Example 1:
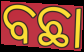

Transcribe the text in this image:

ବଛା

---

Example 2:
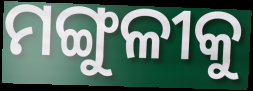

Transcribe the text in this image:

ମଙ୍ଗୁଳୀକୁ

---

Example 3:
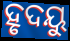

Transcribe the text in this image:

ହୃଦୟୁ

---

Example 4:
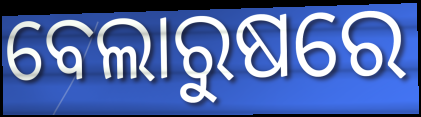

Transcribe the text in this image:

ବେଲାରୁଷରେ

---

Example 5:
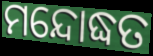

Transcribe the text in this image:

ମନ୍ଦୋଦ୍ଧତ